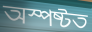
অস্পষ্টত